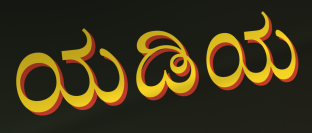
ಯಡಿಯ